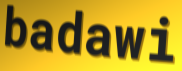
badawi